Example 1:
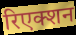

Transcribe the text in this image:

रिएक्शन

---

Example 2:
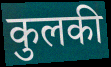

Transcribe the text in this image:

कुलकी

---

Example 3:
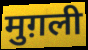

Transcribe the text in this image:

मुग़ली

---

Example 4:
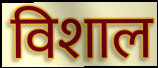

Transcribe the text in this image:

विशाल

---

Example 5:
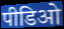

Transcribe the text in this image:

पीडिओ